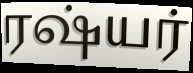
ரஷ்யர்